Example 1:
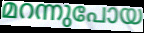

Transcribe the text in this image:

മറന്നുപോയ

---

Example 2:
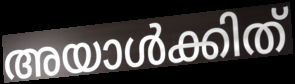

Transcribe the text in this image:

അയാൾക്കിത്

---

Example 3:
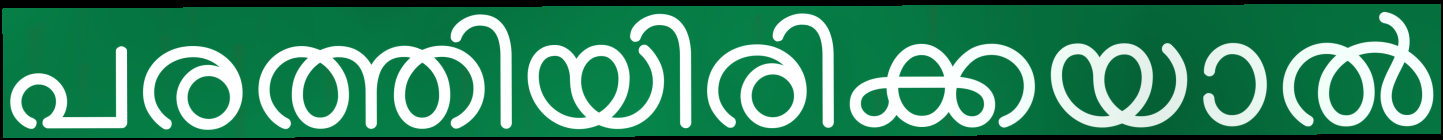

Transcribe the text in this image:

പരത്തിയിരിക്കയാൽ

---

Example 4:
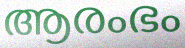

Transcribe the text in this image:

ആരംഭം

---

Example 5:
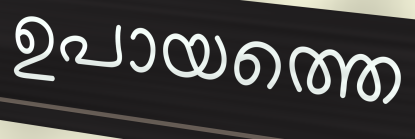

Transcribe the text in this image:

ഉപായത്തെ